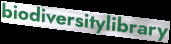
biodiversitylibrary